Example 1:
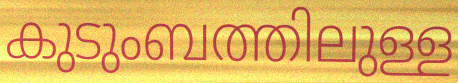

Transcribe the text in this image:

കുടുംബത്തിലുള്ള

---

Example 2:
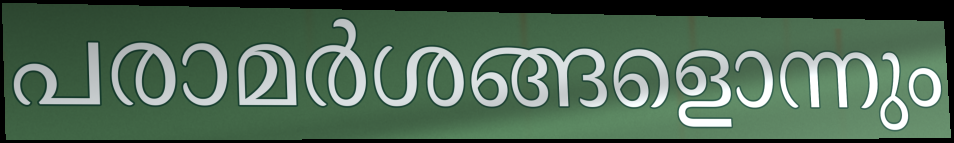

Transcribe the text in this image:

പരാമർശങ്ങളൊന്നും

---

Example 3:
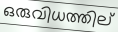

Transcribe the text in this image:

ഒരുവിധത്തില്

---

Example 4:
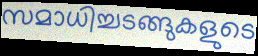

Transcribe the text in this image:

സമാധിച്ചടങ്ങുകളുടെ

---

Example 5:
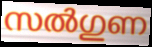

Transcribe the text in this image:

സൽഗുണ